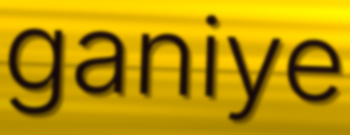
ganiye